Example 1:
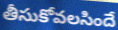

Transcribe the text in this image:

తీసుకోవలసిందే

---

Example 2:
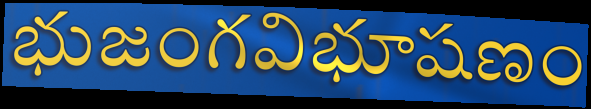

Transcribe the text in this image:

భుజంగవిభూషణం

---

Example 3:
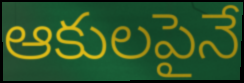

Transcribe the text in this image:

ఆకులపైనే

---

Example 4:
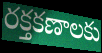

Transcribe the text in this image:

రక్తకణాలకు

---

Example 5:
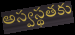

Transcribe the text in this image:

అస్వస్థతకు